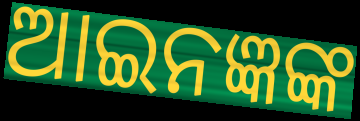
ଆଇନଜ୍ଞଙ୍କ